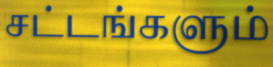
சட்டங்களும்